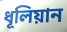
ধূলিয়ান